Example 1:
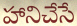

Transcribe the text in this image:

హానిచేసే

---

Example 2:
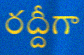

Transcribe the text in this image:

రద్దీగా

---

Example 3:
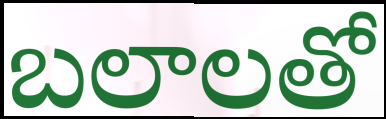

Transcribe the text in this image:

బలాలతో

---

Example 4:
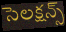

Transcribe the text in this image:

సెలక్షన్స్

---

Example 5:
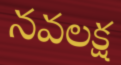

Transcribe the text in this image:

నవలక్ష